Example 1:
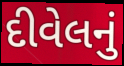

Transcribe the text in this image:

દીવેલનું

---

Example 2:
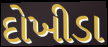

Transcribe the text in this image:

દોખીડા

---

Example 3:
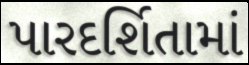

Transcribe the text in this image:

પારદર્શિતામાં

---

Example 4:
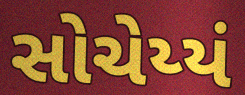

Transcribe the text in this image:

સોચેય્યં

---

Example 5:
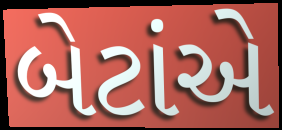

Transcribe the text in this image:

બેટાંએ